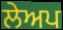
ਲੇਅਪ